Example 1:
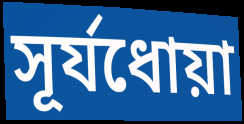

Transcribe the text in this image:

সূর্যধোয়া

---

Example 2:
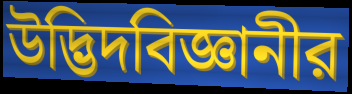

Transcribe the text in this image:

উদ্ভিদবিজ্ঞানীর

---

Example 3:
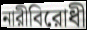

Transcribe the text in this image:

নারীবিরোধী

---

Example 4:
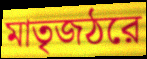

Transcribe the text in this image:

মাতৃজঠরে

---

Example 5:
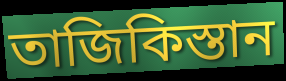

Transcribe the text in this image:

তাজিকিস্তান